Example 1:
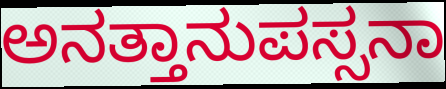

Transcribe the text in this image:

ಅನತ್ತಾನುಪಸ್ಸನಾ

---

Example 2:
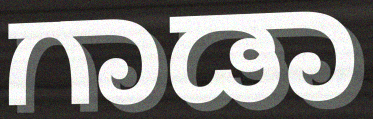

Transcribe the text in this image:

ಗಾಡಾ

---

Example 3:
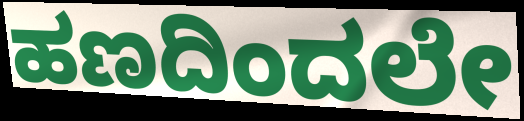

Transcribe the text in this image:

ಹಣದಿಂದಲೇ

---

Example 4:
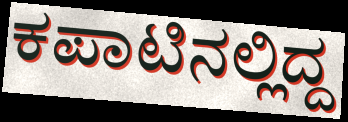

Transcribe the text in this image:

ಕಪಾಟಿನಲ್ಲಿದ್ದ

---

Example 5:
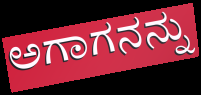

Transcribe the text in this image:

ಅಗಾಗನನ್ನು